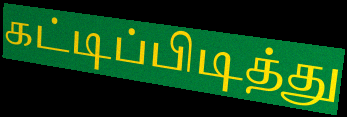
கட்டிப்பிடித்து